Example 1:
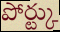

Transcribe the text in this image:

పోర్ట్కు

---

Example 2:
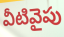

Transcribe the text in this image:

వీటివైపు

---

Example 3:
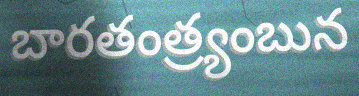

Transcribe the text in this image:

బారతంత్ర్యంబున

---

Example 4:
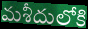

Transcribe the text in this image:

మశీదులోకి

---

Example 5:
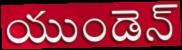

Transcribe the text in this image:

యుండెన్